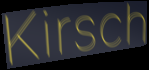
Kirsch